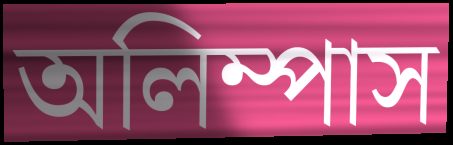
অলিম্পাস